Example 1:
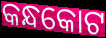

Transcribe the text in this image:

କନ୍ଧକୋଟ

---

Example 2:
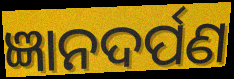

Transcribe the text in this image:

ଜ୍ଞାନଦର୍ପଣ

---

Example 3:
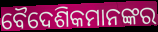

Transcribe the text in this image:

ବୈଦେଶିକମାନଙ୍କର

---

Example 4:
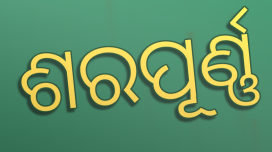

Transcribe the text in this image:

ଶରପୂର୍ଣ୍ଣ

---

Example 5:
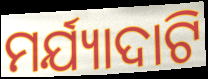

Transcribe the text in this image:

ମର୍ଯ୍ୟାଦାଟି